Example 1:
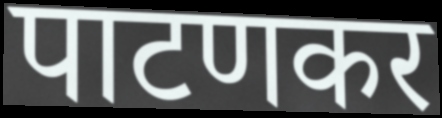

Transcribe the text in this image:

पाटणकर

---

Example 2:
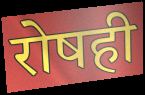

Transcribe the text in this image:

रोषही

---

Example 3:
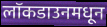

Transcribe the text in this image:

लॉकडाउनमधून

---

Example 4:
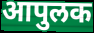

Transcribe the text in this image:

आपुलक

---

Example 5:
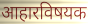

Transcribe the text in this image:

आहारविषयक